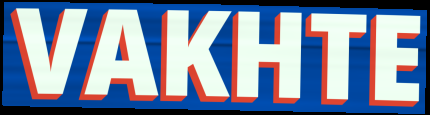
VAKHTE